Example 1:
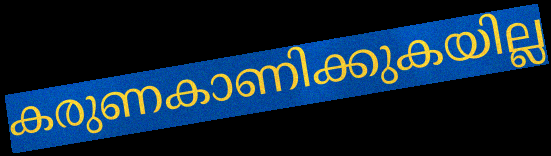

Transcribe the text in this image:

കരുണകാണിക്കുകയില്ല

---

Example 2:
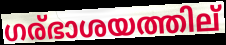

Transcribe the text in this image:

ഗര്ഭാശയത്തില്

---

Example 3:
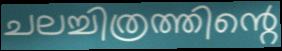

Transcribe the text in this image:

ചലച്ചിത്രത്തിന്റെ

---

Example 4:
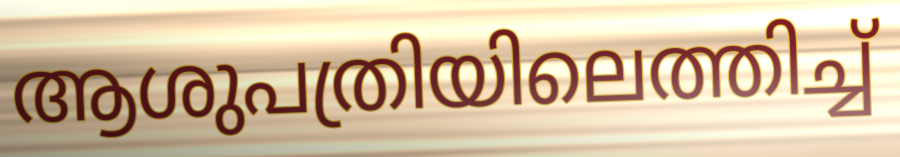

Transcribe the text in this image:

ആശുപത്രിയിലെത്തിച്ച്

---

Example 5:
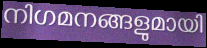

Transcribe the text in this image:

നിഗമനങ്ങളുമായി